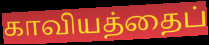
காவியத்தைப்